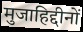
मुजाहिद्दीनों